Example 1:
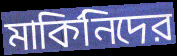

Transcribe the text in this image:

মার্কিনিদের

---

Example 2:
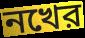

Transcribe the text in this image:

নখের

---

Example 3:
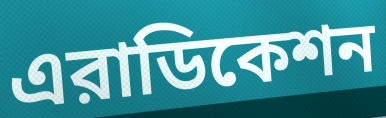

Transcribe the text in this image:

এরাডিকেশন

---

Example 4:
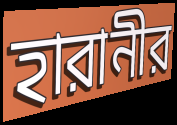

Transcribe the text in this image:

হারানীর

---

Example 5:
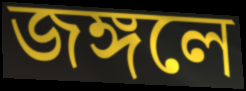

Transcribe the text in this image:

জঙ্গলে